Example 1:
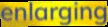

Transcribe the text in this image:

enlarging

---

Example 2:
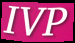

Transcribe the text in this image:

IVP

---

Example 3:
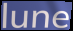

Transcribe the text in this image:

lune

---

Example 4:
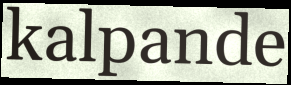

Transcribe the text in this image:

kalpande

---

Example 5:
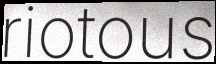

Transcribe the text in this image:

riotous